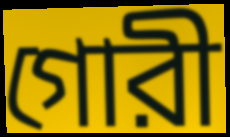
গোরী